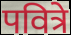
पवित्रे